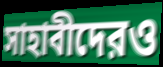
সাহাবীদেরও